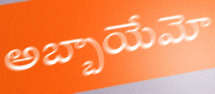
అబ్బాయేమో